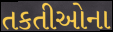
તકતીઓના